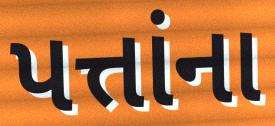
પત્તાંના